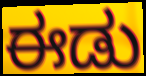
ಈಡು